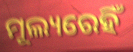
ମୂଲ୍ୟରେହିଁ